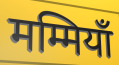
मम्मियाँ